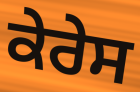
ਕੇਰੇਸ